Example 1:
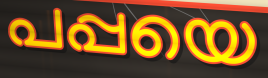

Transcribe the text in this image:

പപ്പയെ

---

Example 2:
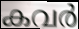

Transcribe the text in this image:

കവർ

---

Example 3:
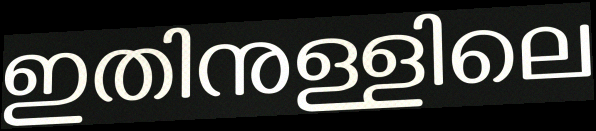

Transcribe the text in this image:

ഇതിനുള്ളിലെ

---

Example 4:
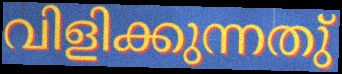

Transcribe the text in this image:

വിളിക്കുന്നതു്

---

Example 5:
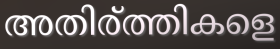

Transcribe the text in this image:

അതിര്ത്തികളെ